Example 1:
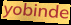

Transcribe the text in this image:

yobinde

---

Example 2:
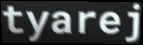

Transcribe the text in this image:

tyarej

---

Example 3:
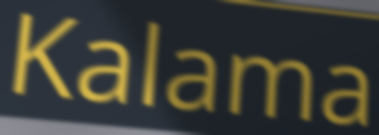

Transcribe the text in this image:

Kalama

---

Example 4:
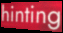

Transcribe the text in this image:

hinting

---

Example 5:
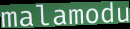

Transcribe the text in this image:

malamodu